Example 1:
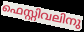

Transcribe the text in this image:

ഫെസ്റ്റിവലിനു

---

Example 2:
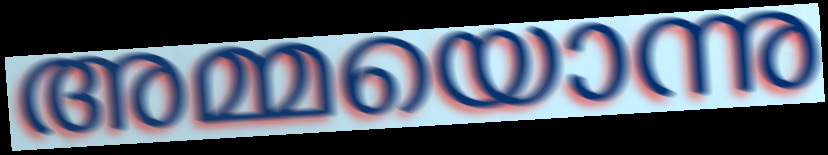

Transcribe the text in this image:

അമ്മയൊന്നു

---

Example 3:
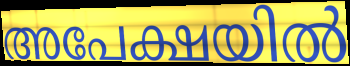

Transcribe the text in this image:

അപേക്ഷയിൽ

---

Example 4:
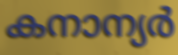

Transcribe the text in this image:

കനാന്യർ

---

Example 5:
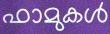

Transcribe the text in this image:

ഫാമുകൾ